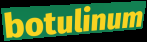
botulinum